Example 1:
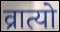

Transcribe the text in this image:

व्रात्यो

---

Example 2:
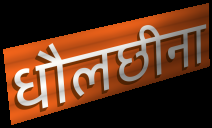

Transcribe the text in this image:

धौलछीना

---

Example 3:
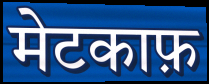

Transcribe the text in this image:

मेटकाफ़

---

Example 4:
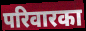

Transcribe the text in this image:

परिवारका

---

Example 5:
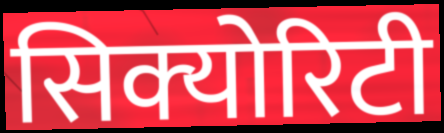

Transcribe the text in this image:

सिक्‍योरिटी